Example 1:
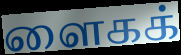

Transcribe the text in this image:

ளைகக்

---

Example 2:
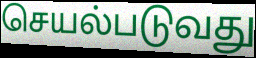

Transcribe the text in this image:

செயல்படுவது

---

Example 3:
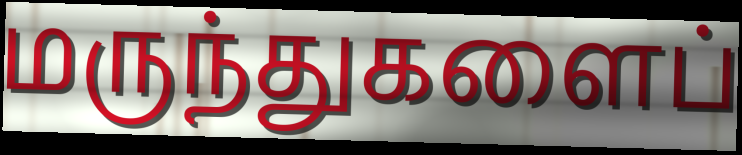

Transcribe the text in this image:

மருந்துகளைப்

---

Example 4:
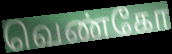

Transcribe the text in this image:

வெண்கோ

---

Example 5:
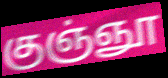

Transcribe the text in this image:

குஞ்ஞூ